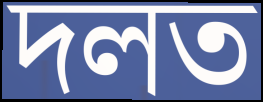
দলত